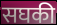
सघकी